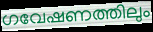
ഗവേഷണത്തിലും